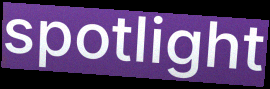
spotlight